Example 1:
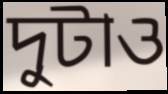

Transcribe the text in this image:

দুটাও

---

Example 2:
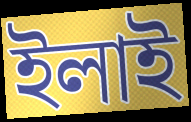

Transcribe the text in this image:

ইলাই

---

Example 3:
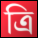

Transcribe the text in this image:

ত্ৰি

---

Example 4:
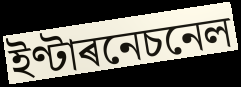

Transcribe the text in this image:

ইণ্টাৰনেচনেল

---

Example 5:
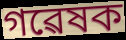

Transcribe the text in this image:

গৱেষক